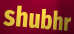
shubhr